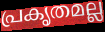
പ്രകൃതമല്ല